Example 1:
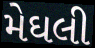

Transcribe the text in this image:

મેઘલી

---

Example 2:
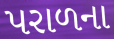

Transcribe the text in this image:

પરાળના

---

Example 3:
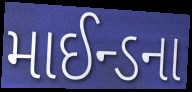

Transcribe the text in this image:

માઈન્ડના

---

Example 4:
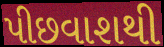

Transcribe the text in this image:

પીછવાશથી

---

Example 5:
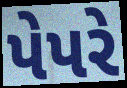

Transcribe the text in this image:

પેપરે